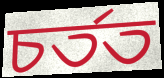
চৰ্তত